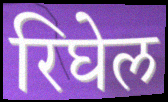
रिघेल